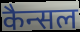
कैन्सल